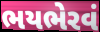
ભયભેરવં